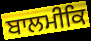
ਬਾਲਮੀਕਿ